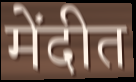
मेंदीत